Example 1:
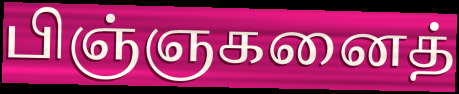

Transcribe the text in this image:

பிஞ்ஞகனைத்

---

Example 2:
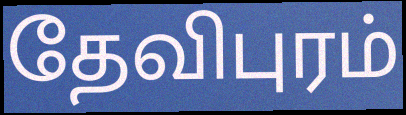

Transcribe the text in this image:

தேவிபுரம்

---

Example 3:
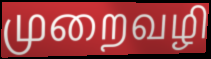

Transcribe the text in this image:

முறைவழி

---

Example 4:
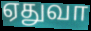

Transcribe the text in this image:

ஏதுவா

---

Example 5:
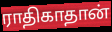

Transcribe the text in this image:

ராதிகாதான்